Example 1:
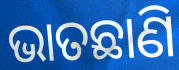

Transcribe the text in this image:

ଭାତଛାଣି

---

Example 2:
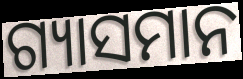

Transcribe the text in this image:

ଗ୍ୟାସମାନ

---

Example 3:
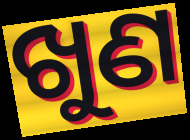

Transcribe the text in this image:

ଖୁଣ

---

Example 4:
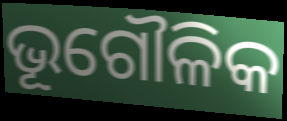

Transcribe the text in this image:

ଭୂଗୌଳିକ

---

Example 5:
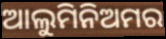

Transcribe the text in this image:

ଆଲୁମିନିଅମର